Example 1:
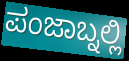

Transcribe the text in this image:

ಪಂಜಾಬ್ನಲ್ಲಿ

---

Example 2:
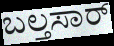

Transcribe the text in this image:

ಬಲ್ತಸಾರ್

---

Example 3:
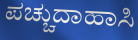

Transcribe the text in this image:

ಪಚ್ಚುದಾಹಾಸಿ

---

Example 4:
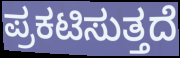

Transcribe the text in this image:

ಪ್ರಕಟಿಸುತ್ತದೆ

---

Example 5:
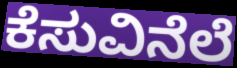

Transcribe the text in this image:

ಕೆಸುವಿನೆಲೆ